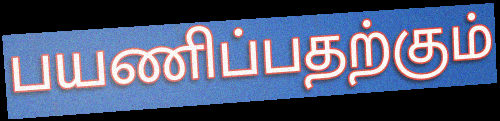
பயணிப்பதற்கும்